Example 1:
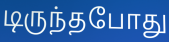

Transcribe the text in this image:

டிருந்தபோது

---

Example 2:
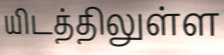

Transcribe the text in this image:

யிடத்திலுள்ள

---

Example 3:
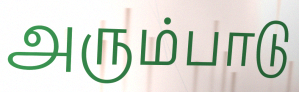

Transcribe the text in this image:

அரும்பாடு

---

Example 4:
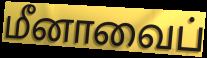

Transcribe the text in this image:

மீனாவைப்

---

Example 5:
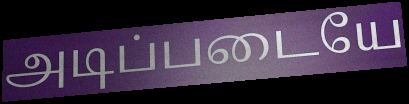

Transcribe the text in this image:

அடிப்படையே